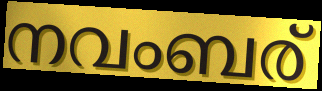
നവംബര്